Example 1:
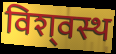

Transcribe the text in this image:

विश्वस्थ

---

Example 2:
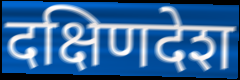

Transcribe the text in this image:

दक्षिणदेश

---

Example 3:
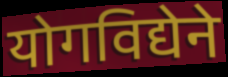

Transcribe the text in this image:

योगविद्येने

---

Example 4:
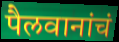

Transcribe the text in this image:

पैलवानांचं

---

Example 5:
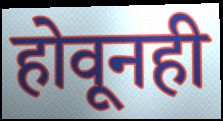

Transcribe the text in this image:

होवूनही